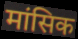
मांसिक